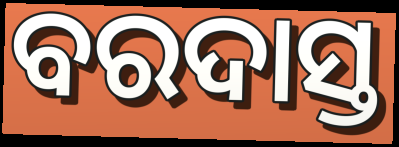
ବରଦାସ୍ତ